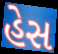
હેસ